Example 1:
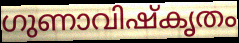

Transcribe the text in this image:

ഗുണാവിഷ്കൃതം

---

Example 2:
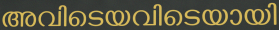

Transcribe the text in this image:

അവിടെയവിടെയായി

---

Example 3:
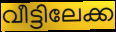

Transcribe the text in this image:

വീട്ടിലേക്ക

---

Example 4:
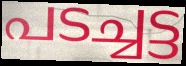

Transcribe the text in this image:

പടച്ചട്ട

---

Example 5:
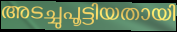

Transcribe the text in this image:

അടച്ചുപൂട്ടിയതായി